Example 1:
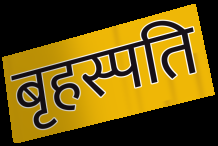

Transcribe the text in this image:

बृहस्पति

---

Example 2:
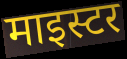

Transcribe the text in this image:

माइस्टर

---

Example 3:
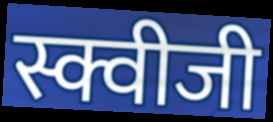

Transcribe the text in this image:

स्क्वीजी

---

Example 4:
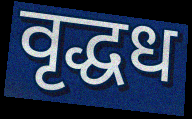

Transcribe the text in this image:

वृद्धध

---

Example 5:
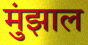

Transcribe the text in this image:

मुंझाल